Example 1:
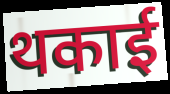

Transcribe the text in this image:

थकाई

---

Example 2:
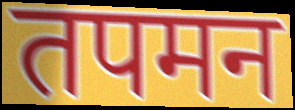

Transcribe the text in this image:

तपमन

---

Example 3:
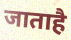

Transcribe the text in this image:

जाताहै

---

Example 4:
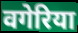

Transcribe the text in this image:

वगेरिया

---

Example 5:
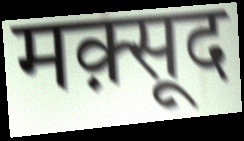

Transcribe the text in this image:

मक़्सूद